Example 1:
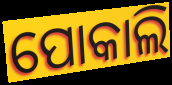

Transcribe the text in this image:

ପୋକାଲି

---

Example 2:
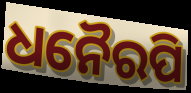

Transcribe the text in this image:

ଧନୈରପି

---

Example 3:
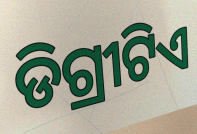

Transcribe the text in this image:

ଡିଗ୍ରୀଟିଏ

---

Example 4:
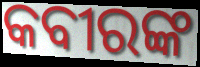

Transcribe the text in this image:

କବୀରଙ୍କ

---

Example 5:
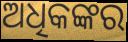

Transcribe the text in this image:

ଅଧିକଙ୍କର